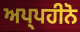
ਅਪ੍ਪਹੀਨੋ